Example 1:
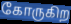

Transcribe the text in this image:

கோருகிற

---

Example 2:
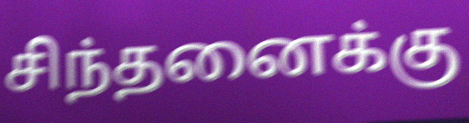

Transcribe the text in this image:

சிந்தனைக்கு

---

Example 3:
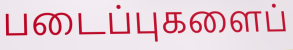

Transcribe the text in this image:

படைப்புகளைப்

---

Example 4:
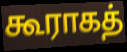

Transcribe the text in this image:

கூராகத்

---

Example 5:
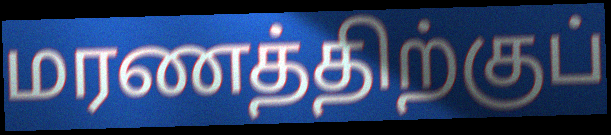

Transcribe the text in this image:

மரணத்திற்குப்